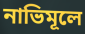
নাভিমূলে